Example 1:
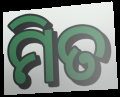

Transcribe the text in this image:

ମିତ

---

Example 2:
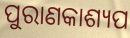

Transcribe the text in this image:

ପୁରାଣକାଶ୍ୟପ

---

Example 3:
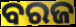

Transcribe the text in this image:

ବରଜ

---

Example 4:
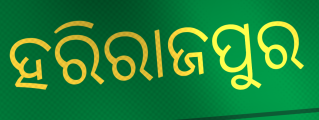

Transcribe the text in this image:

ହରିରାଜପୁର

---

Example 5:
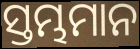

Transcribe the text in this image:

ସ୍ତମ୍ଭମାନ